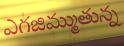
ఎగజిమ్ముతున్న